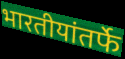
भारतीयांतर्फे